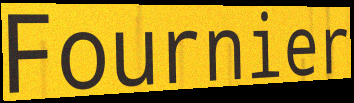
Fournier